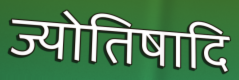
ज्योतिषादि